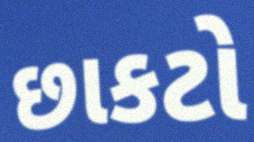
છાકટો